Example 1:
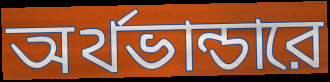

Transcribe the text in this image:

অর্থভান্ডারে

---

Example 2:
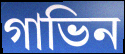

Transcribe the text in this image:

গাভিন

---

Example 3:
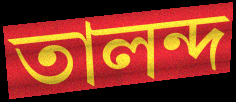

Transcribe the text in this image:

তালন্দ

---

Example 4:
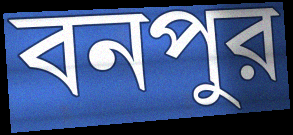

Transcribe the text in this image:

বনপুর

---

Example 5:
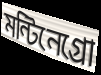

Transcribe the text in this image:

মন্টিনেগ্রো